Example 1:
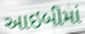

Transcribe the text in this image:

આઇબીમાં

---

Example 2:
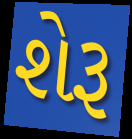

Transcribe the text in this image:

શેરૂ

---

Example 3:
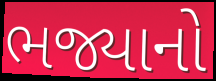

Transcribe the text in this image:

ભજ્યાનો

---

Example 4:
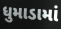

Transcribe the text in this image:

ધુમાડામાં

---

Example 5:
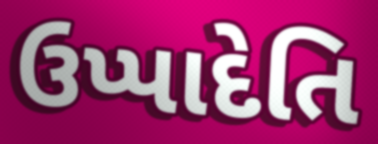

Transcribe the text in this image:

ઉપ્પાદેતિ